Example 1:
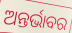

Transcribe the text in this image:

ଅନ୍ତର୍ଭାବର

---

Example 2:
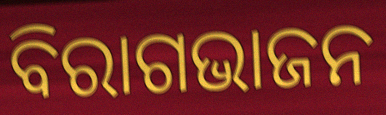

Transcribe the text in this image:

ବିରାଗଭାଜନ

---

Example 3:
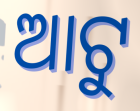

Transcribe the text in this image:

ଆଟୁ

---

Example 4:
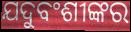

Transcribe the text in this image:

ଯଦୁବଂଶୀଙ୍କର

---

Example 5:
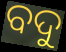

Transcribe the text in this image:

ବଦୁ